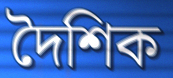
দৈশিক